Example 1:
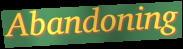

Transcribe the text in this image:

Abandoning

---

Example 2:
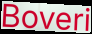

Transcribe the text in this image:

Boveri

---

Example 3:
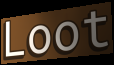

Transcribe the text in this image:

Loot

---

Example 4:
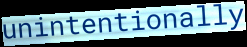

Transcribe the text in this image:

unintentionally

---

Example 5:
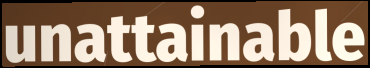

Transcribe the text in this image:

unattainable